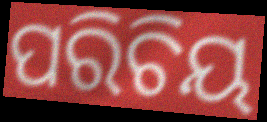
ପରିଚିୟ